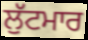
ਲੁੱਟਮਾਰ